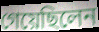
গেয়েছিলেন